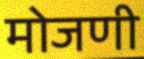
मोजणी